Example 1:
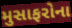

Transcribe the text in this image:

મુસાફરોના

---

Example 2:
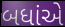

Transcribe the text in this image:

બધાંએ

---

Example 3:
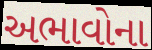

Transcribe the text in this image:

અભાવોના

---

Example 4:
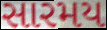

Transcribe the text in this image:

સારમય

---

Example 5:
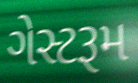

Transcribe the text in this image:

ગેસ્ટરૂમ